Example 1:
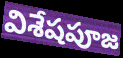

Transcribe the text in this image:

విశేషపూజ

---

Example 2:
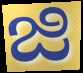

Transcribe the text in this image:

జి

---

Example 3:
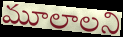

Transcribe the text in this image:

మూలాలని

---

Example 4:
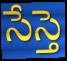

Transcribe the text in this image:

సేస్తె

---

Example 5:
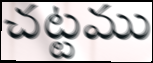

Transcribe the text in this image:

చట్టము